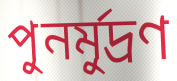
পুনর্মুদ্রণ